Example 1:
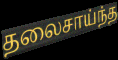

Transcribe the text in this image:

தலைசாய்ந்த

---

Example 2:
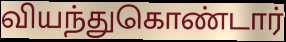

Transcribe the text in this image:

வியந்துகொண்டார்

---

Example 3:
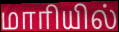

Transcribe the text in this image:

மாரியில்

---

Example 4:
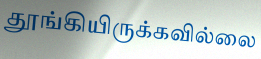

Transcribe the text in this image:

தூங்கியிருக்கவில்லை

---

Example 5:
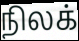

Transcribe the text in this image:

நிலக்